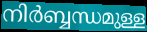
നിർബ്ബന്ധമുള്ള